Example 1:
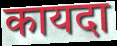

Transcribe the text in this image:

कायदा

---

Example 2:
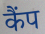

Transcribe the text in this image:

कैंप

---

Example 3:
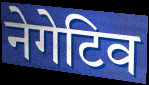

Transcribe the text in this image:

नेगेटिव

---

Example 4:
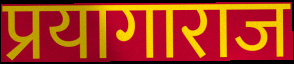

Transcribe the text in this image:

प्रयागाराज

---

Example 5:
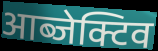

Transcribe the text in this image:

आब्जेक्टिव